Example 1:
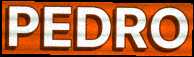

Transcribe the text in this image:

PEDRO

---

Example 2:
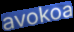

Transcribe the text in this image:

avokoa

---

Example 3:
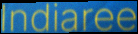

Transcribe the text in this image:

Indiaree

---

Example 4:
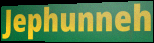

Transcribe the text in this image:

Jephunneh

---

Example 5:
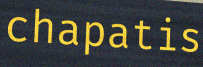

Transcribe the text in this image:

chapatis